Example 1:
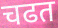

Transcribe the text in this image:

चढत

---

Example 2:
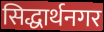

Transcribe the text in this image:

सिद्धार्थनगर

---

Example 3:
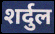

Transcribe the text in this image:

शर्दुल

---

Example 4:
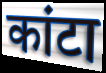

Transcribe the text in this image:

कांटा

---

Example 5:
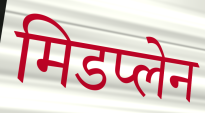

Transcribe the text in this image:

मिडप्लेन